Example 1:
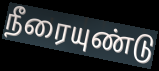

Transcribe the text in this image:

நீரையுண்டு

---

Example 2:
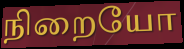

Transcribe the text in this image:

நிறையோ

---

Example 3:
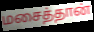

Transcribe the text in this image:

மசைத்தான்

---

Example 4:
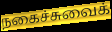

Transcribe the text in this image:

நகைச்சுவைக்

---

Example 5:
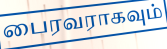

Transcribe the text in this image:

பைரவராகவும்